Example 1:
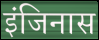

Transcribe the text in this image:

इंजिनास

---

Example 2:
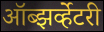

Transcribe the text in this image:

ऑब्झर्व्हेटरी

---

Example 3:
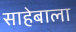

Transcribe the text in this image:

साहेबाला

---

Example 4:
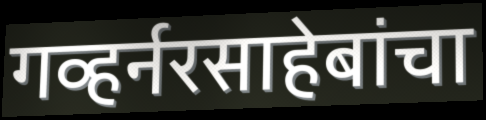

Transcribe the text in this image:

गव्हर्नरसाहेबांचा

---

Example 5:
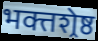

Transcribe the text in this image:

भक्तश्रेष्ठ